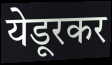
येडूरकर